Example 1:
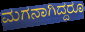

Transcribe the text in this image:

ಮಗನಾಗಿದ್ದರೂ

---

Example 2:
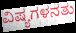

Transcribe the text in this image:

ವಿಷ್ಯಗಳನತು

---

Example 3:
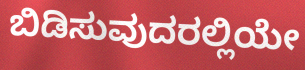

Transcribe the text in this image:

ಬಿಡಿಸುವುದರಲ್ಲಿಯೇ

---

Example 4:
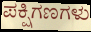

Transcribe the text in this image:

ಪಕ್ಷಿಗಣಗಳು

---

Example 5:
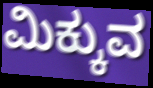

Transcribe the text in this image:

ಮಿಕ್ಕುವ